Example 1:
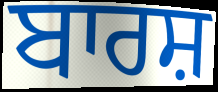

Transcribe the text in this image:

ਬਾਰਸ਼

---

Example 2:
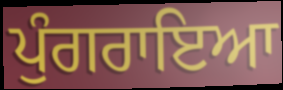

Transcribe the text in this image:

ਪੁੰਗਰਾਇਆ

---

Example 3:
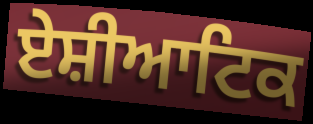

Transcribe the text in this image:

ਏਸ਼ੀਆਟਿਕ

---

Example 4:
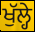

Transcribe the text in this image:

ਖੁੱਲ੍ਹੇ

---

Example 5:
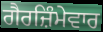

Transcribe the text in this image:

ਗੈਰਜ਼ਿੰਮੇਵਾਰ